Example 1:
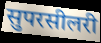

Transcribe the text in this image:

सुपरसीलरी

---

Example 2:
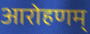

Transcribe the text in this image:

आरोहणम्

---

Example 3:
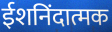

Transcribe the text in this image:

ईशनिंदात्मक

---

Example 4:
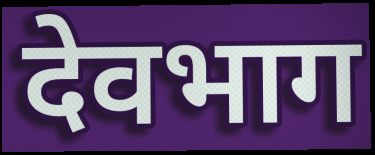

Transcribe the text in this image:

देवभाग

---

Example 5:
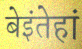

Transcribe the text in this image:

बेइंतेहां